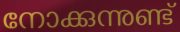
നോക്കുന്നുണ്ട്